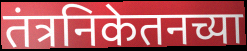
तंत्रनिकेतनच्या